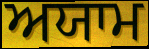
ਅਯਾਮ